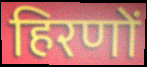
हिरणों